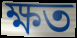
ক্ষত